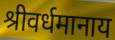
श्रीवर्धमानाय